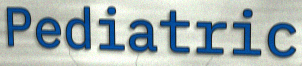
Pediatric